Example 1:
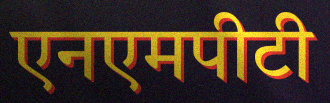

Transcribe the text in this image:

एनएमपीटी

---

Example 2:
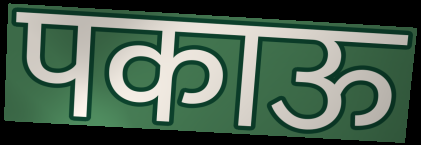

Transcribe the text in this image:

पकाऊ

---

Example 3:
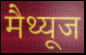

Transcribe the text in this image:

मैथ्यूज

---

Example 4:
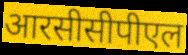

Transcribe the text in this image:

आरसीसीपीएल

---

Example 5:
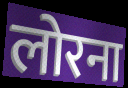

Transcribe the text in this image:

लोरना